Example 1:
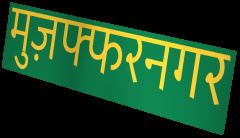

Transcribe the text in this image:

मुज़फ्फरनगर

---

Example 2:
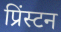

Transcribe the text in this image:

प्रिंस्टन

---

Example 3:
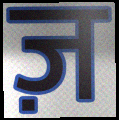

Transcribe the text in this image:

ज़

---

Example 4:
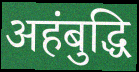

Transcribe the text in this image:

अहंबुद्धि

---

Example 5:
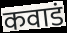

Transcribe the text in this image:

कवाडं